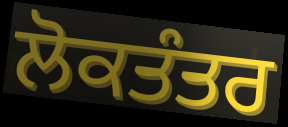
ਲੋਕਤੰਤਰ